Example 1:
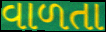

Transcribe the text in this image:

વાળતા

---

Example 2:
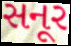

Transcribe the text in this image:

સનૂર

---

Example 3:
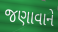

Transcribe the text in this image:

જણાવાને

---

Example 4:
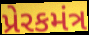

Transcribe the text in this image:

પ્રેરકમંત્ર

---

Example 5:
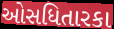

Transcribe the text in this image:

ઓસધિતારકા